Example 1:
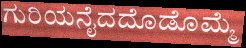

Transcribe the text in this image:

ಗುರಿಯನೈದದೊಡೊಮ್ಮೆ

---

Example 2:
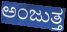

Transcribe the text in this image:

ಅಂಜುತ್ತ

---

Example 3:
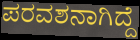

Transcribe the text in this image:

ಪರವಶನಾಗಿದ್ದೆ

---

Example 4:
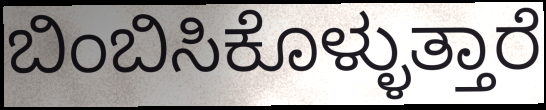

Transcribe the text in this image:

ಬಿಂಬಿಸಿಕೊಳ್ಳುತ್ತಾರೆ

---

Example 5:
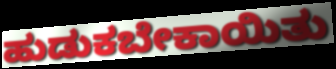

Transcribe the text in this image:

ಹುಡುಕಬೇಕಾಯಿತು